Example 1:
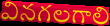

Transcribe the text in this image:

వినగలగాలి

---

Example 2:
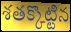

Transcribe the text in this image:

శతక్కొట్టిన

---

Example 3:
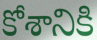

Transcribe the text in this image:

కోశానికి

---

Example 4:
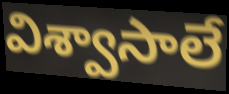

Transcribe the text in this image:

విశ్వాసాలే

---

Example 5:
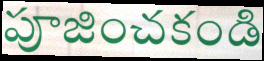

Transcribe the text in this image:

పూజించకండి